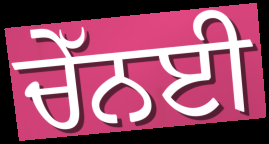
ਚੇੱਨਈ